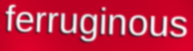
ferruginous